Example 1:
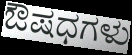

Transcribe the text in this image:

ಔಷಧಗಳು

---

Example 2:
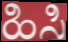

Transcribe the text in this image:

ಹಿಸಿ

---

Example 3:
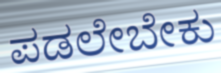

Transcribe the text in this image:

ಪಡಲೇಬೇಕು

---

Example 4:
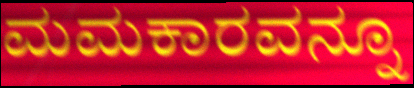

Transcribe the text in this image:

ಮಮಕಾರವನ್ನೂ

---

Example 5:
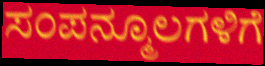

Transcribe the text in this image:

ಸಂಪನ್ಮೂಲಗಳಿಗೆ